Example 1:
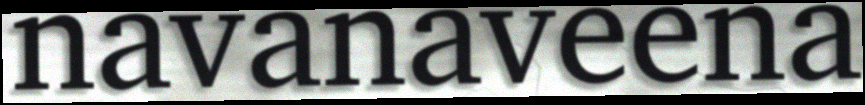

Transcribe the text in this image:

navanaveena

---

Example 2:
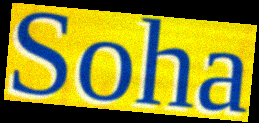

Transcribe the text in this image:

Soha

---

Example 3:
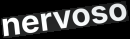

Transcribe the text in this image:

nervoso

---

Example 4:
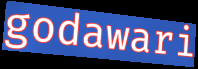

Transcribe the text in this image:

godawari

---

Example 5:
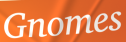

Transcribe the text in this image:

Gnomes